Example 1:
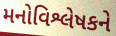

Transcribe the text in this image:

મનોવિશ્લેષકને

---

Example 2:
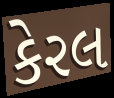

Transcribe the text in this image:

કેરલ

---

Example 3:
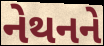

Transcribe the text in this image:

નેથનને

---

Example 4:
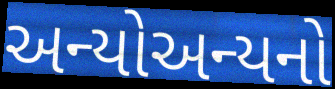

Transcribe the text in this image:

અન્યોઅન્યનો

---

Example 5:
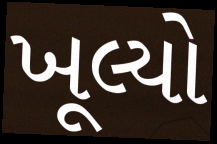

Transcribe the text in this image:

ખૂલ્યો